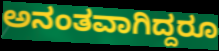
ಅನಂತವಾಗಿದ್ದರೂ